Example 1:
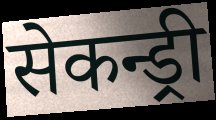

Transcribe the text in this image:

सेकन्ड्री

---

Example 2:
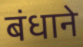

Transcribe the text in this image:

बंधाने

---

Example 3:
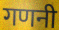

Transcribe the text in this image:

गणनी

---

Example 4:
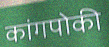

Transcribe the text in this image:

कांगपोकी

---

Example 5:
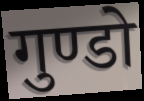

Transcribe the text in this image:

गुण्डो